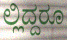
ಲ್ಲಿದ್ದರೂ